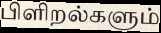
பிளிறல்களும்